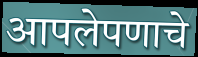
आपलेपणाचे